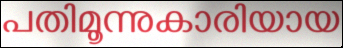
പതിമൂന്നുകാരിയായ